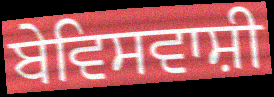
ਬੇਵਿਸਵਾਸ਼ੀ